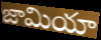
జామియా